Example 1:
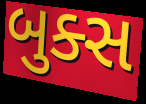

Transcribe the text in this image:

બુક્સ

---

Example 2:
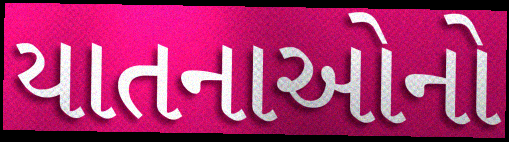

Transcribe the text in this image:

યાતનાઓનો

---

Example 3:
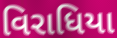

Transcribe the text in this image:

વિરાધિયા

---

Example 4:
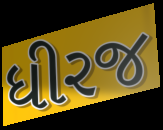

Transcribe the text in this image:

ધીરજ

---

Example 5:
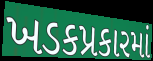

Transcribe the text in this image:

ખડકપ્રકારમાં